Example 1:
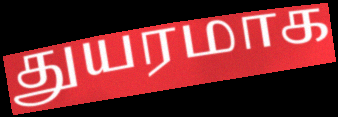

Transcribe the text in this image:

துயரமாக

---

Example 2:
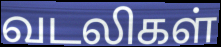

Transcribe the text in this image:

வடலிகள்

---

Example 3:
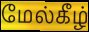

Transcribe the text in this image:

மேல்கீழ்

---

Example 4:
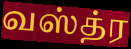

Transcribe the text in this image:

வஸ்த்ர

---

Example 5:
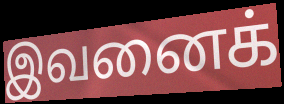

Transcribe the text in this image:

இவனைக்